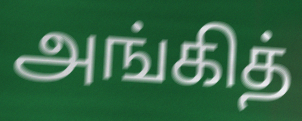
அங்கித்